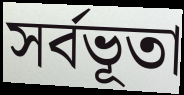
সর্বভূতা